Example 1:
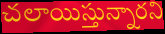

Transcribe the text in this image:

చలాయిస్తున్నారని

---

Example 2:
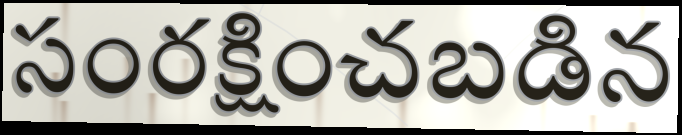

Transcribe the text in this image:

సంరక్షించబడిన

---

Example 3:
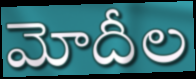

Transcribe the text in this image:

మోదీల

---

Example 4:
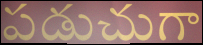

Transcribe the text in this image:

పడుచుగా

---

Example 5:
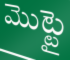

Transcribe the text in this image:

మొట్టై